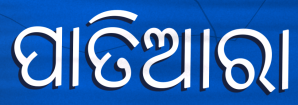
ପାତିଆରା